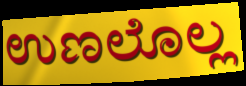
ಉಣಲೊಲ್ಲ